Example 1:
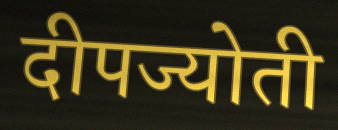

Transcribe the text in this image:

दीपज्योती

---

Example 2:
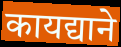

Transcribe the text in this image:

कायद्याने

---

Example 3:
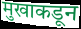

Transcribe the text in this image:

मुखाकडून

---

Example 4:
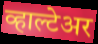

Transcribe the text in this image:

व्हाल्टेअर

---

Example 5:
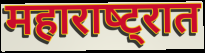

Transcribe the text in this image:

महाराष्‍ट्रात